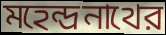
মহেন্দ্রনাথের